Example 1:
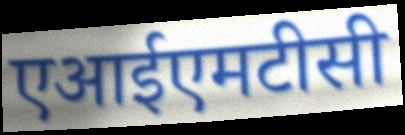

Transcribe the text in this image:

एआईएमटीसी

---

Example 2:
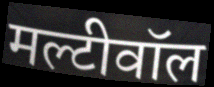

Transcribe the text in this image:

मल्टीवॉल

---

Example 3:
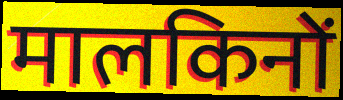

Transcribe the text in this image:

मालकिनों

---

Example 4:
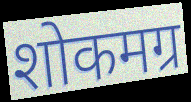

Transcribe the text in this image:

शोकमग्र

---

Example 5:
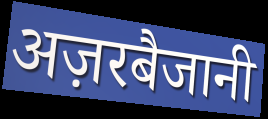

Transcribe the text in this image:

अज़रबैजानी